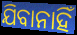
ଯିବାନାହିଁ